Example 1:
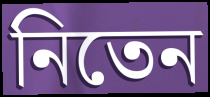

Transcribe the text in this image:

নিতেন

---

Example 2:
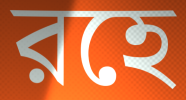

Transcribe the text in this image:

রহে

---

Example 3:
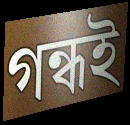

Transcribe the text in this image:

গন্ধই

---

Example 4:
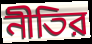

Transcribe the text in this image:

নীতির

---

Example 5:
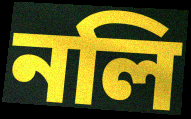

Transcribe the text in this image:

নলি